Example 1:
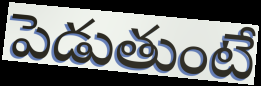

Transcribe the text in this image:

పెడుతుంటే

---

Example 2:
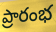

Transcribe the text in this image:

ప్రారంభ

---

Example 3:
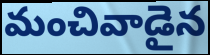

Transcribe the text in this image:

మంచివాడైన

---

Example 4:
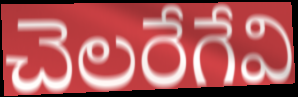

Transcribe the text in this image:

చెలరేగేవి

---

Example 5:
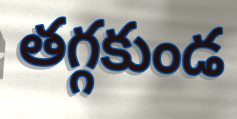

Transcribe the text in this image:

తగ్గకుండ